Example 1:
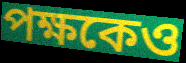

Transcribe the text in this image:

পক্ষকেও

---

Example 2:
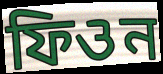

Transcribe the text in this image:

ফিওন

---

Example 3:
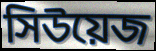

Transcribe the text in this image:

সিউয়েজ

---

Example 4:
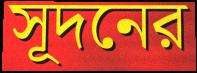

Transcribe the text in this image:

সূদনের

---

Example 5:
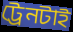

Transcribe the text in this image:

ট্রেনটাই